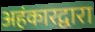
अहंकारद्वारा